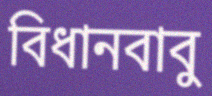
বিধানবাবু